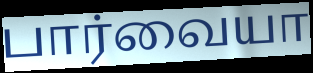
பார்வையா